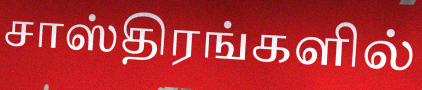
சாஸ்திரங்களில்